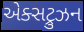
એક્સટ્રુઝન